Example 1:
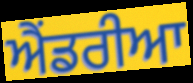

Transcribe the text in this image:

ਐਂਡਰੀਆ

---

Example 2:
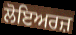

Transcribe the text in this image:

ਲੋਇਅਰਜ਼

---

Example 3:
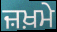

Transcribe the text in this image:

ਜ਼ਖ਼ਮੇ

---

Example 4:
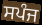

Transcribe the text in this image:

ਸਪੰਜ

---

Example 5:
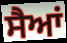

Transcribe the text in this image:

ਸੈਆਂ